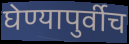
घेण्यापुर्वीच